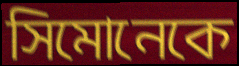
সিমোনেকে